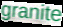
granite